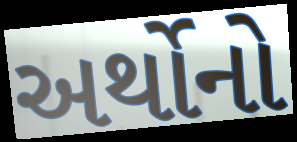
અર્થોનો